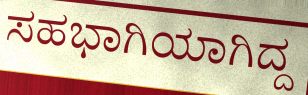
ಸಹಭಾಗಿಯಾಗಿದ್ದ